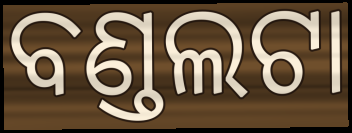
ବଣ୍ଡଲଟା